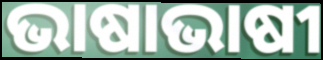
ଭାଷାଭାଷୀ